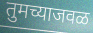
तुमच्याजवळ